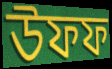
উফফ